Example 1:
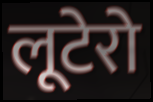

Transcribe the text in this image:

लूटेरो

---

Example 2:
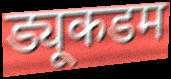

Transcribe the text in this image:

ड्यूकडम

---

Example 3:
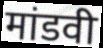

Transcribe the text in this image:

मांडवी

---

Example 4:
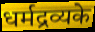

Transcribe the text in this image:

धर्मद्रव्यके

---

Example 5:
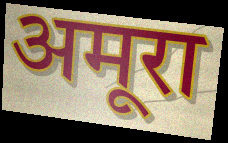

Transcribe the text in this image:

अमूरा